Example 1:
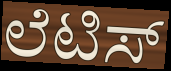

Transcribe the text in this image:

ಲೆಟಿಸ್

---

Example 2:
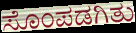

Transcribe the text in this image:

ಸೊಂಪಡಗಿತು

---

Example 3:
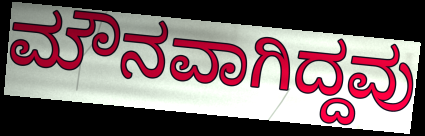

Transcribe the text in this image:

ಮೌನವಾಗಿದ್ದವು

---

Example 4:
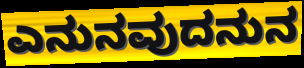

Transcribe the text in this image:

ಎನುನವುದನುನ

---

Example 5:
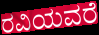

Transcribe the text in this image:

ರವಿಯವರೆ